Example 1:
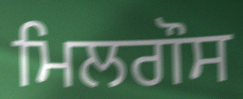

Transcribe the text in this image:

ਮਿਲਗੌਸ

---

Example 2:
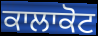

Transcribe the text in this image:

ਕਾਲਾਕੋਟ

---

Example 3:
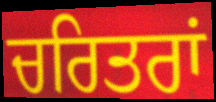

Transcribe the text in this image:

ਚਰਿਤਰਾਂ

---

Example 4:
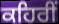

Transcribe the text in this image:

ਕਹਿਰੀਂ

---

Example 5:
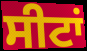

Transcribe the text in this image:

ਸੀਟਾਂ